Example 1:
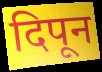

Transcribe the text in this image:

दिपून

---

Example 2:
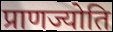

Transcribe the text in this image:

प्राणज्योति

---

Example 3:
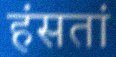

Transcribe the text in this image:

हंसतां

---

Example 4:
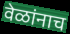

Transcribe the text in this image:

वेळांनाच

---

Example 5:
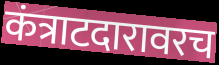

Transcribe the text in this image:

कंत्राटदारावरच